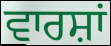
ਵਾਰਸ਼ਾਂ